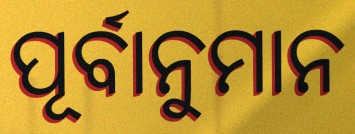
ପୂର୍ବାନୁମାନ